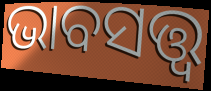
ଭାବସତ୍ତ୍ୱ